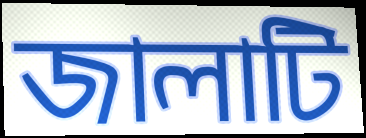
জালাটি